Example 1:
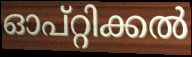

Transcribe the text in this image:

ഓപ്റ്റിക്കൽ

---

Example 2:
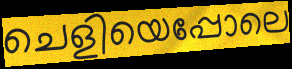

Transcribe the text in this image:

ചെളിയെപ്പോലെ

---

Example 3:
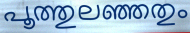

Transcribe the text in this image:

പൂത്തുലഞ്ഞതും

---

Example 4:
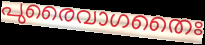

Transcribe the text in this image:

പുരൈവാഗതൈഃ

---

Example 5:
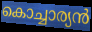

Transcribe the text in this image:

കൊച്ചാര്യൻ